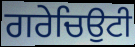
ਗਰੇਚਿਉਟੀ